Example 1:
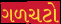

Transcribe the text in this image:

ગળચટો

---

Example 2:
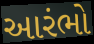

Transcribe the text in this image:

આરંભો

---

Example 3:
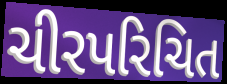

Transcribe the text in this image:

ચીરપરિચિત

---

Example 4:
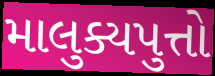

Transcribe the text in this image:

માલુક્યપુત્તો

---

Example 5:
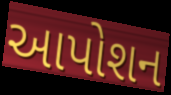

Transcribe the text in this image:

આપોશન